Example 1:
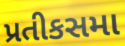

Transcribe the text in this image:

પ્રતીકસમા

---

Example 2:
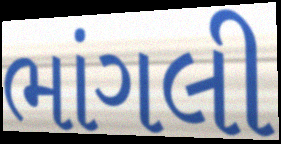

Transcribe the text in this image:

ભાંગલી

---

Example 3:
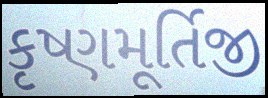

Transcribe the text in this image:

કૃષ્ણમૂર્તિજી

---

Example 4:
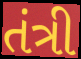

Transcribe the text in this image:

તંત્રી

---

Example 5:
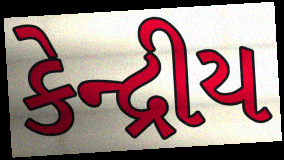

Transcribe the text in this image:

કેન્દ્રીય